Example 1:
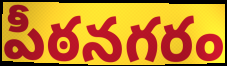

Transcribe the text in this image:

పీఠనగరం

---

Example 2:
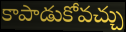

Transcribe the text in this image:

కాపాడుకోవచ్చు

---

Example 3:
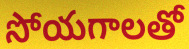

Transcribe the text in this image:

సోయగాలతో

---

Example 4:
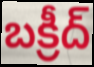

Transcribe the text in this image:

బక్రీద్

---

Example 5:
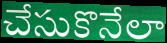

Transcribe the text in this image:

చేసుకొనేలా